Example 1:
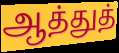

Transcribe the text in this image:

ஆத்துத்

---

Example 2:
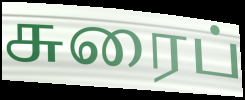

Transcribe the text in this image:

சுரைப்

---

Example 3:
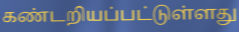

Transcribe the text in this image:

கண்டறியப்பட்டுள்ளது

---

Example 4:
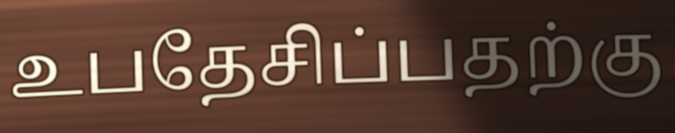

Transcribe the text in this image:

உபதேசிப்பதற்கு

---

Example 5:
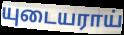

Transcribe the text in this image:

யுடையராய்